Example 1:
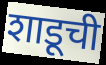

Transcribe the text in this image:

शाडूची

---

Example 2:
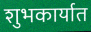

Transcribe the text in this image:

शुभकार्यात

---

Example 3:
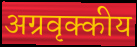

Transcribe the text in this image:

अग्रवृक्कीय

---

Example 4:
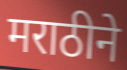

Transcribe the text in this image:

मराठीने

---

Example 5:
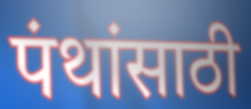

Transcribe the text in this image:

पंथांसाठी